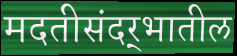
मदतीसंदर्भातील